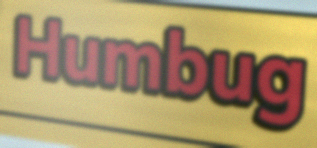
Humbug